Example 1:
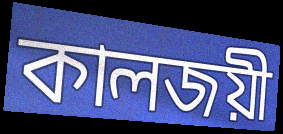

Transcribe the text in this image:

কালজয়ী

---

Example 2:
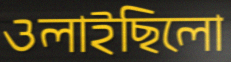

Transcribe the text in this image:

ওলাইছিলো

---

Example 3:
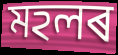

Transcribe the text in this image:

মহলৰ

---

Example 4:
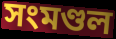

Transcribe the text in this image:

সংমণ্ডল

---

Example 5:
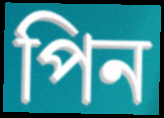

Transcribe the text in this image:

পিন